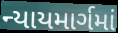
ન્યાયમાર્ગમાં